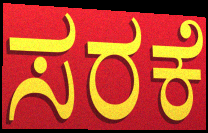
ಸರಕೆ